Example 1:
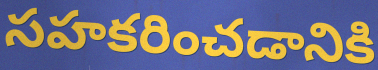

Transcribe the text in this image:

సహకరించడానికి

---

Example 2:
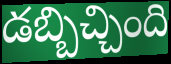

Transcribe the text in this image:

డబ్బిచ్చింది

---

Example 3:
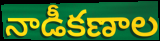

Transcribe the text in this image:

నాడీకణాల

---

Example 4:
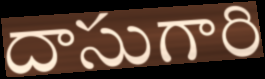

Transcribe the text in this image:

దాసుగారి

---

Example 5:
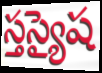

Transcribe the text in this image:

స్తస్యైష